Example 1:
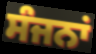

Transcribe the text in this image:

ਸੰਜਨਾਂ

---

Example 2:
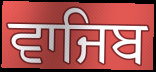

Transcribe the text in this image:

ਵਾਜਿਬ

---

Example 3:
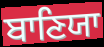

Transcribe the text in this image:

ਬਾਣਿਯਾ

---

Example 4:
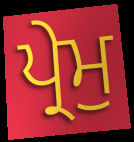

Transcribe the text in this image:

ਪ੍ਰੇਮੁ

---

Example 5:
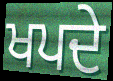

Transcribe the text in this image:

ਖਪਦੇ